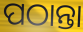
ପଠାନ୍ତା